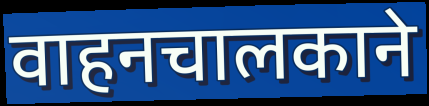
वाहनचालकाने